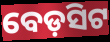
ବେଡ଼ସିଟ